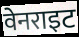
वेनराइट